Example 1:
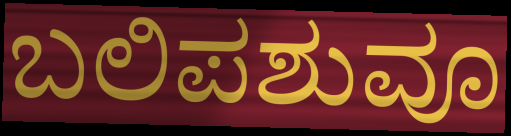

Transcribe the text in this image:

ಬಲಿಪಶುವೂ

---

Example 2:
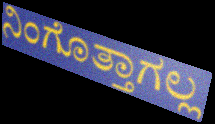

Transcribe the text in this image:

ನಿಂಗೊತ್ತಾಗಲ್ಲ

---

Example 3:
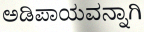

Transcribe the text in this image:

ಅಡಿಪಾಯವನ್ನಾಗಿ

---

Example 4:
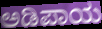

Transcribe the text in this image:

ಅಡಿಪಾಯ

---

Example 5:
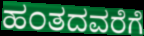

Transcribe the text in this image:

ಹಂತದವರೆಗೆ